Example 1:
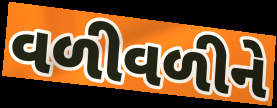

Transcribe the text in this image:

વળીવળીને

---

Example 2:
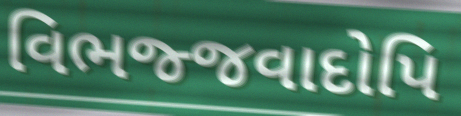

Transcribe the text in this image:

વિભજ્જવાદોપિ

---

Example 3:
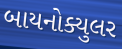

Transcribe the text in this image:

બાયનોક્યુલર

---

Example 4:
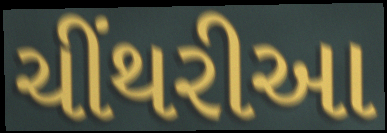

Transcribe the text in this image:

ચીંથરીઆ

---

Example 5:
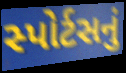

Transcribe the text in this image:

સ્પોર્ટસનું